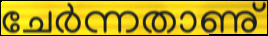
ചേർന്നതാണു്